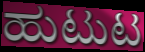
ಹುಟುಟ